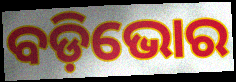
ବଡ଼ିଭୋର